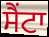
ਸੈਂਟਾ